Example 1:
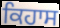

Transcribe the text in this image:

ਕਿਹਾਸ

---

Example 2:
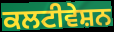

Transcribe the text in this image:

ਕਲਟੀਵੇਸ਼ਨ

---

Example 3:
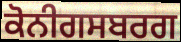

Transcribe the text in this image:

ਕੋਨੀਗਸਬਰਗ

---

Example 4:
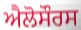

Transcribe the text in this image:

ਐਲੋਸੌਰਸ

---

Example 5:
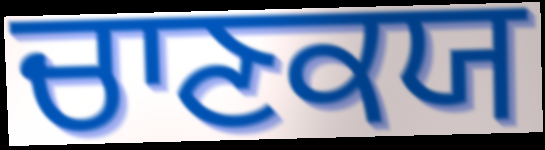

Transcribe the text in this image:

ਚਾਣਕਯ